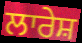
ਲਾਰੇਸ਼